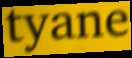
tyane